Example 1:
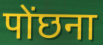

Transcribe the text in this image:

पोंछना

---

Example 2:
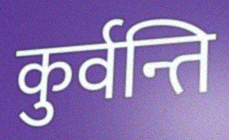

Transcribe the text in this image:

कुर्वन्ति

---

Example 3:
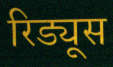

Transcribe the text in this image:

रिड्यूस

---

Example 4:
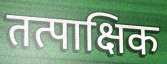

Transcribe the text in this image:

तत्पाक्षिक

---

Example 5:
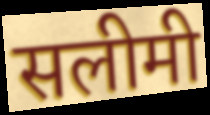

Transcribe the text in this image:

सलीमी